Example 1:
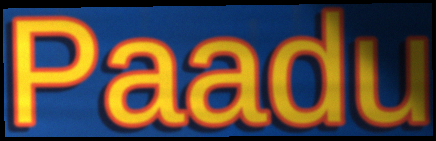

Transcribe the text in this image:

Paadu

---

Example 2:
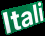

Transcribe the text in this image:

Itali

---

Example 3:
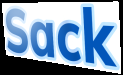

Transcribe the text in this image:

Sack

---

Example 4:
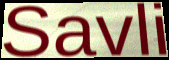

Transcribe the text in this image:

Savli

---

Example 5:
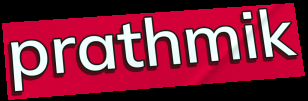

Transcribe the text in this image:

prathmik